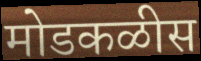
मोडकळीस